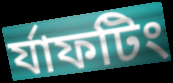
র্যাফটিং